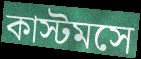
কাস্টমসে